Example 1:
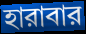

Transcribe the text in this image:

হারাবার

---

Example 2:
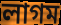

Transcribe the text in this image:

লাগম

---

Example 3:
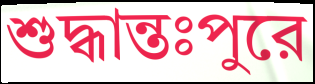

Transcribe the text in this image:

শুদ্ধান্তঃপুরে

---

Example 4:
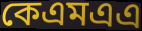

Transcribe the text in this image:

কেএমএএ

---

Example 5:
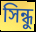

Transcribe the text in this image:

সিন্ধু